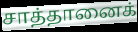
சாத்தானைக்